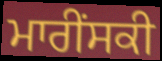
ਮਾਰੀੰਸਕੀ